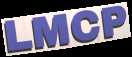
LMCP